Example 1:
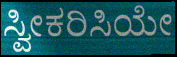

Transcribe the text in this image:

ಸ್ವೀಕರಿಸಿಯೇ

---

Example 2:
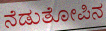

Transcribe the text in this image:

ನೆಡುತೋಪಿನ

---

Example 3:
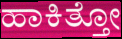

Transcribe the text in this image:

ಹಾಕಿತ್ತೋ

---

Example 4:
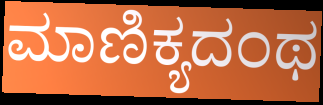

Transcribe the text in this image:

ಮಾಣಿಕ್ಯದಂಥ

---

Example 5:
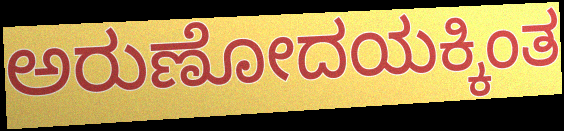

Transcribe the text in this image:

ಅರುಣೋದಯಕ್ಕಿಂತ